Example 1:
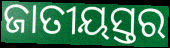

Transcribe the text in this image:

ଜାତୀୟସ୍ତର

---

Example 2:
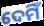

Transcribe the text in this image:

ଦେମିଁ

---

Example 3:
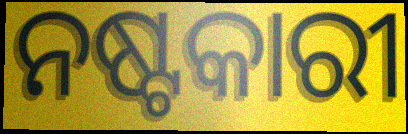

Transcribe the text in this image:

ନଷ୍ଟକାରୀ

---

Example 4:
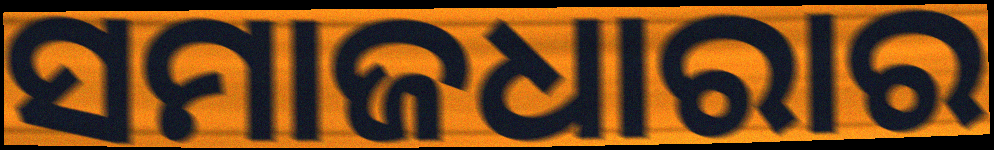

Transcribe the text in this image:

ସମାଜଧାରାର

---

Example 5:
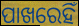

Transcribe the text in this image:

ପାଖରେହିଁ